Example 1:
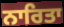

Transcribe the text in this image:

ਨਾਰਿਤਾ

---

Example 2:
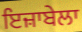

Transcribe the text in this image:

ਇਜ਼ਾਬੇਲਾ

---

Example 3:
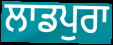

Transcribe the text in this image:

ਲਾਡਪੁਰਾ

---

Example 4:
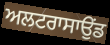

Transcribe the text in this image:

ਅਲਟਰਾਸਾਉਂਡ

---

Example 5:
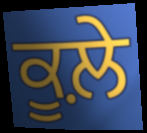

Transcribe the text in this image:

ਕੂਲ਼ੇ